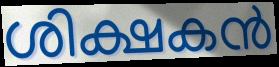
ശിക്ഷകൻ